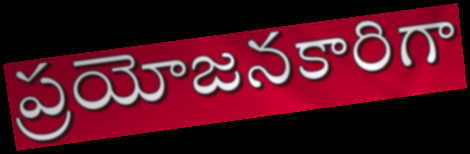
ప్రయోజనకారిగా